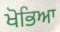
ਖੋਭਿਆ